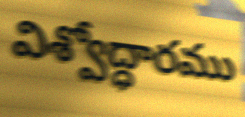
విశ్వోద్ధారము